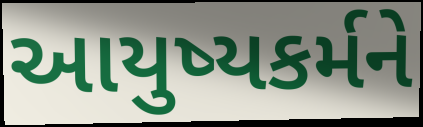
આયુષ્યકર્મને